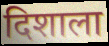
दिशाला